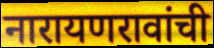
नारायणरावांची